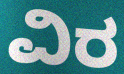
ವಿರ